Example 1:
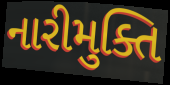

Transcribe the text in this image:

નારીમુક્તિ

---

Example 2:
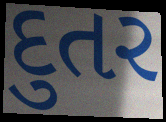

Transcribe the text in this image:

દુતર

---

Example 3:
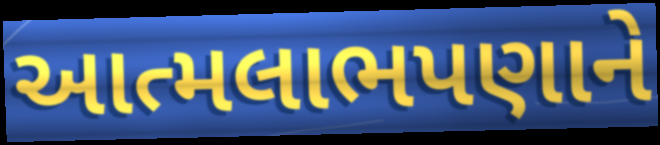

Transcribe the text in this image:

આત્મલાભપણાને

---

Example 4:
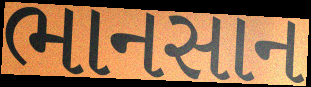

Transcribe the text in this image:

ભાનસાન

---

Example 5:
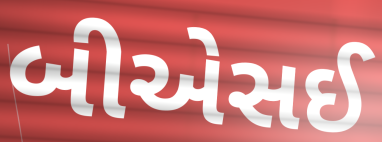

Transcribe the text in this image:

બીએસઈ